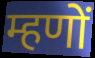
म्हणों